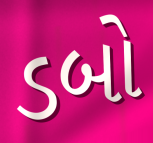
ડબો